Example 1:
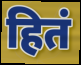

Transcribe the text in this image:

हितं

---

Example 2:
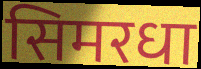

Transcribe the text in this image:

सिमरधा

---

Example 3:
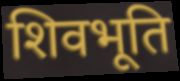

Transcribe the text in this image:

शिवभूति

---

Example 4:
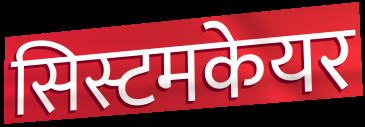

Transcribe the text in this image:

सिस्टमकेयर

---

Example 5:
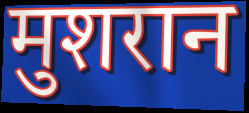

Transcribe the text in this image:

मुशरान